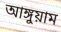
আঙ্গুয়াম